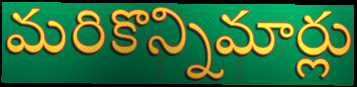
మరికొన్నిమార్లు